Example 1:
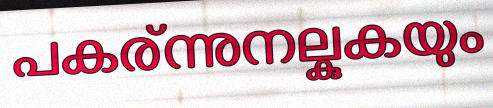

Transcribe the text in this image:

പകര്ന്നുനല്കുകയും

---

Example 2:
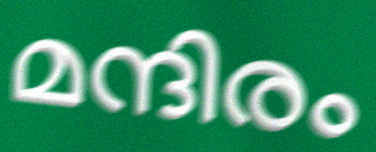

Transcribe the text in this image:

മന്ദിരം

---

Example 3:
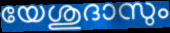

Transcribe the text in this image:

യേശുദാസും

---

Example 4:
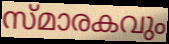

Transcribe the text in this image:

സ്മാരകവും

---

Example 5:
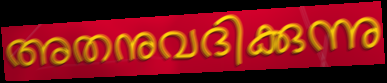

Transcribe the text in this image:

അതനുവദിക്കുന്നു